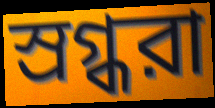
স্রগ্ধরা